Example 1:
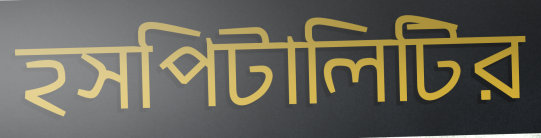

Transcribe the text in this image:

হসপিটালিটির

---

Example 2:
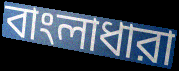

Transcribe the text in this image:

বাংলাধারা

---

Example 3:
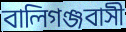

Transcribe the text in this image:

বালিগঞ্জবাসী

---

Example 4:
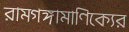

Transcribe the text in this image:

রামগঙ্গামাণিক্যের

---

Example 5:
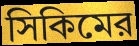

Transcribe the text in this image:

সিকিমের